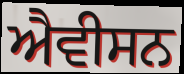
ਐਵੀਸਨ